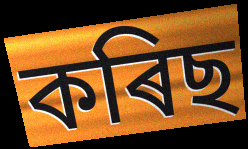
কৰিছ